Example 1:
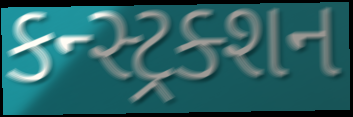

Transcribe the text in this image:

કન્સ્ટ્રક્શન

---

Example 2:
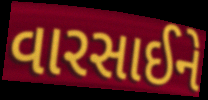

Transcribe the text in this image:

વારસાઈને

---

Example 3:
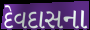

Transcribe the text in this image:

દેવદાસના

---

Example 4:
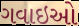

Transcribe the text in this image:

ગવાઇઓ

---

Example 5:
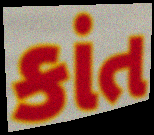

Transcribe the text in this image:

કાંત